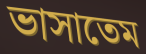
ভাসাতেম